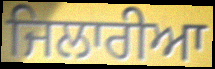
ਜਿਲਾਰੀਆ